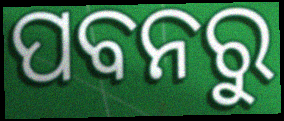
ପବନରୁ